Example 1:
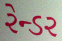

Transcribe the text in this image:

રેન્ડર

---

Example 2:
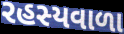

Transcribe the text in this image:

રહસ્યવાળા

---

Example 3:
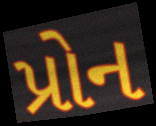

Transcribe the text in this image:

પ્રોન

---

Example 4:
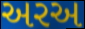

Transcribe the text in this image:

અરઅ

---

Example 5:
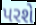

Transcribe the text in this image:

પરશે